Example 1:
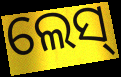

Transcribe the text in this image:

ଲେସ୍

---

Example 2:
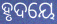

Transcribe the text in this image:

ହୃଦୟେ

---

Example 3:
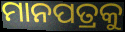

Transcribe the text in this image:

ମାନପତ୍ରକୁ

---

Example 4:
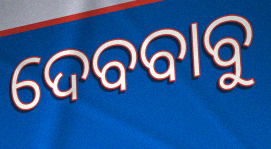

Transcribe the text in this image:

ଦେବବାବୁ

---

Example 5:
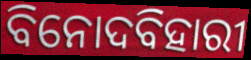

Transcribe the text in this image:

ବିନୋଦବିହାରୀ